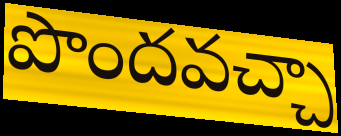
పొందవచ్చా